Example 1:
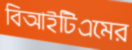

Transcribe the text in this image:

বিআইটিএমের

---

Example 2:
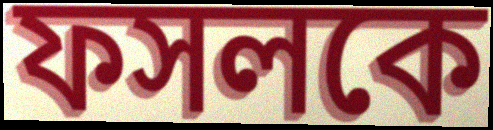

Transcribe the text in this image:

ফসলকে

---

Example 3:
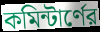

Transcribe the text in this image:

কমিন্টার্ণের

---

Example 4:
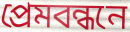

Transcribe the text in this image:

প্রেমবন্ধনে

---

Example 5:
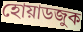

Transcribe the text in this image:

হোয়াডজুক